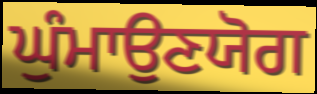
ਘੁੰਮਾਉਣਯੋਗ